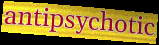
antipsychotic